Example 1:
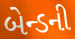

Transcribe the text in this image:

બેન્ડની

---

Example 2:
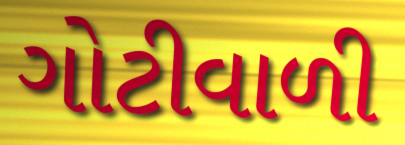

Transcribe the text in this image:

ગોટીવાળી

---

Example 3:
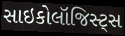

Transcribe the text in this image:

સાઇકોલૉજિસ્ટ્સ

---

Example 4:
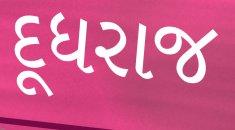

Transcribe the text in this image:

દૂધરાજ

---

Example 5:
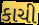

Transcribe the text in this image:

કાચી